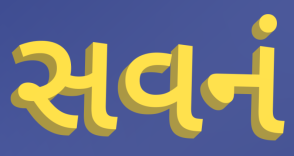
સવનં